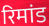
रिमांड